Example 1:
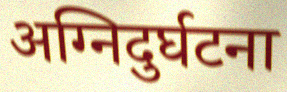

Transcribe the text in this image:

अग्निदुर्घटना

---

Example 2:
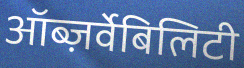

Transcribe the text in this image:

ऑब्ज़र्वेबिलिटी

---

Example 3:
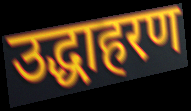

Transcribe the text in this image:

उद्धाहरण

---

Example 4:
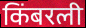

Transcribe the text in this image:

किंबरली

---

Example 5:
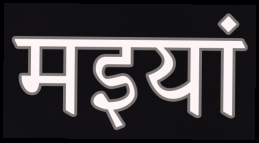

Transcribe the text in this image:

मइयां